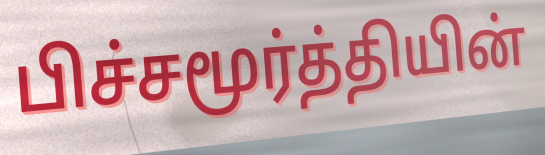
பிச்சமூர்த்தியின்